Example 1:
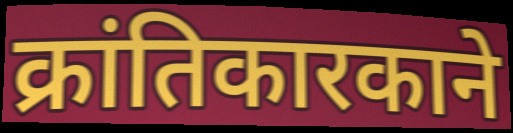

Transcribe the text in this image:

क्रांतिकारकाने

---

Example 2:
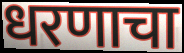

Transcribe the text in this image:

धरणाचा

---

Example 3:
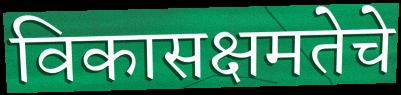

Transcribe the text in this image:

विकासक्षमतेचे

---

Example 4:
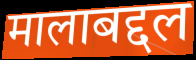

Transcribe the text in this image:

मालाबद्दल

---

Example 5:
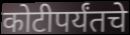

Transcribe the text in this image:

कोटीपर्यंतचे